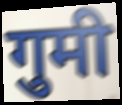
गुमी